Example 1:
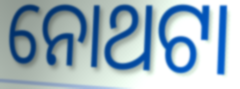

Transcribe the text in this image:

ନୋଥଟା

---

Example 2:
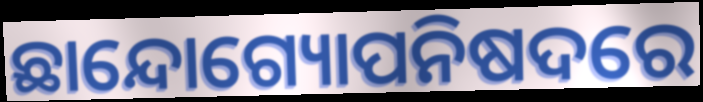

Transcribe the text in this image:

ଛାନ୍ଦୋଗ୍ୟୋପନିଷଦରେ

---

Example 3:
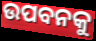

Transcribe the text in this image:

ଉପବନକୁ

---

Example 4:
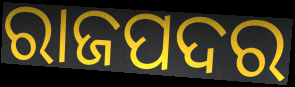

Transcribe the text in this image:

ରାଜପଦର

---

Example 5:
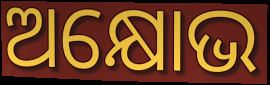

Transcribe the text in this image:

ଅକ୍ଷୋଭ